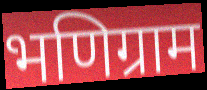
भणिग्राम